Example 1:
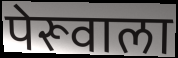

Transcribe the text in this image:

पेरूवाला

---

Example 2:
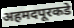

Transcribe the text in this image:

अहमदपूरकडे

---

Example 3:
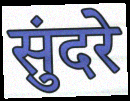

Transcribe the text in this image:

सुंदरे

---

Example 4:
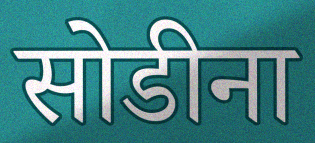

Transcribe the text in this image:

सोडीना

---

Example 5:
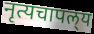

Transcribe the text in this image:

नृत्यचापल्य